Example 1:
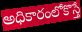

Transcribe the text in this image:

అధికారంలోకొస్తే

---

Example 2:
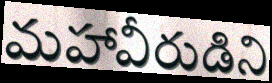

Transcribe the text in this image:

మహావీరుడిని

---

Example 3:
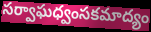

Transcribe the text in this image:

సర్వాఘధ్వంసకమాద్యం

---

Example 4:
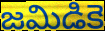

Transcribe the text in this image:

జమిడికె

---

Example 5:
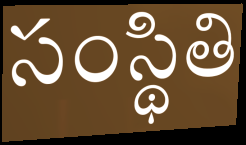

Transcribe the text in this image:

సంస్థితి